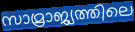
സാമ്രാജ്യത്തിലെ